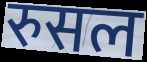
रुसल